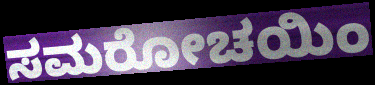
ಸಮರೋಚಯಿಂ